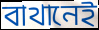
বাথানেই